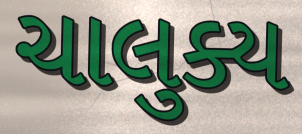
ચાલુક્ય